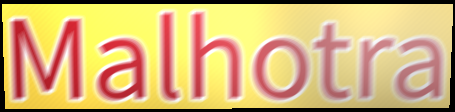
Malhotra